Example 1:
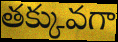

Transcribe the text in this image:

తక్కువగా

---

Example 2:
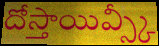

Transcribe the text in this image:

దోస్తాయివ్స్కీ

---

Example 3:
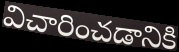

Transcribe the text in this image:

విచారించడానికి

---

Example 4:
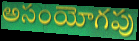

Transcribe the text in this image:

అసంయోగపు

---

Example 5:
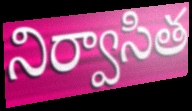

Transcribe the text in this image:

నిర్వాసిత